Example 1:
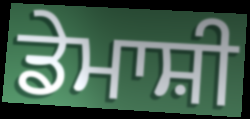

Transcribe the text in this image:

ਡੇਮਾਸ਼ੀ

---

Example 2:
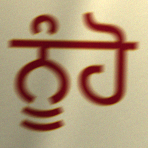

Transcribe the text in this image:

ਨੂੰਹੋ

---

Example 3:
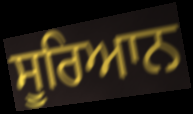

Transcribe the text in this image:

ਸੂਰਿਆਨ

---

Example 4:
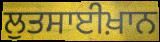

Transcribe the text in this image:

ਲੁਤਸਾਈਖ਼ਾਨ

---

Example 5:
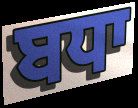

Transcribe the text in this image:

ਬਧਾ